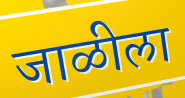
जाळीला